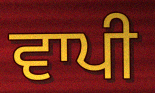
ਵਾਪੀ